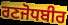
ਰਣਜੋਧਬੀਰ